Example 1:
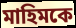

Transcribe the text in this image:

মাহিমকে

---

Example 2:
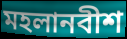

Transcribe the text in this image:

মহলানবীশ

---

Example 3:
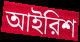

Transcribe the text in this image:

আইরিশ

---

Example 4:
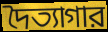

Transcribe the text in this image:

দৈত্যাগার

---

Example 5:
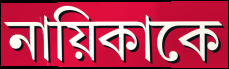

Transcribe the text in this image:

নায়িকাকে